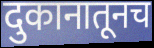
दुकानातूनच